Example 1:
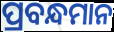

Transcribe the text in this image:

ପ୍ରବନ୍ଧମାନ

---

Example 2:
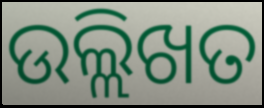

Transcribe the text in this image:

ଉଲ୍ଲିଖତ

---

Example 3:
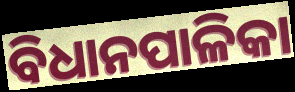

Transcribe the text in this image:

ବିଧାନପାଳିକା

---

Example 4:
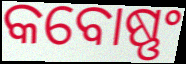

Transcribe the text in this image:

କବୋଷ୍ଣଂ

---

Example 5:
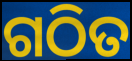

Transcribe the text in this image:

ଗଠିତ